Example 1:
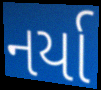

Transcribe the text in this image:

નર્યા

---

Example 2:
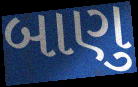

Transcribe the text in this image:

બાણુ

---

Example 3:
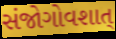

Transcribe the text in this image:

સંજોગોવશાત્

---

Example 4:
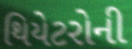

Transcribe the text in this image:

થિયેટરોની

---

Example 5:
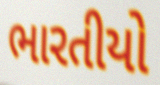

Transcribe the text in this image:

ભારતીયો